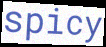
spicy